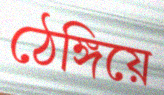
ঠেঙ্গিয়ে